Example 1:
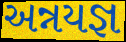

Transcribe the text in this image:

અન્નયજ્ઞ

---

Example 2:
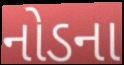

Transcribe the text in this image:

નોડના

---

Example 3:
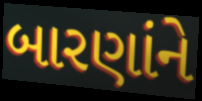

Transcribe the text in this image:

બારણાંને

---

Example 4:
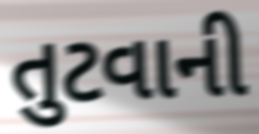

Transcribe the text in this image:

તુટવાની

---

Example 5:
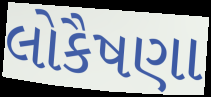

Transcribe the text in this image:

લોકૈષણા